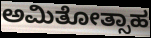
ಅಮಿತೋತ್ಸಾಹ